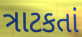
ત્રાટકતાં